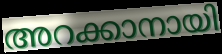
അറക്കാനായി